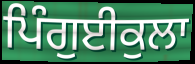
ਪਿੰਗੁਈਕੁਲਾ